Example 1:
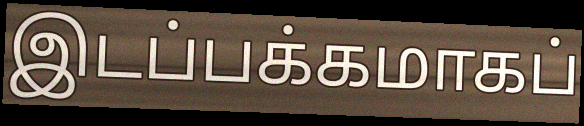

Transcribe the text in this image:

இடப்பக்கமாகப்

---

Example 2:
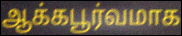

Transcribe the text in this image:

ஆக்கபூர்வமாக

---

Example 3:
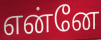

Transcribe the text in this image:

என்னே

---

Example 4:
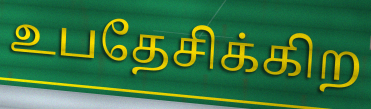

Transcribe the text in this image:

உபதேசிக்கிற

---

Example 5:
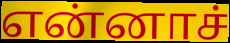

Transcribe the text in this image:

என்னாச்